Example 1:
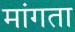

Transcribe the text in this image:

मांगता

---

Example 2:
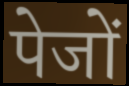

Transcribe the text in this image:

पेजों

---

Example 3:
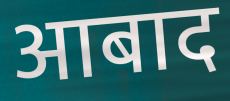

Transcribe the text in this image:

आबाद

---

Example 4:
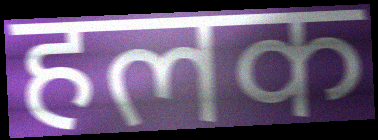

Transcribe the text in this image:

हलक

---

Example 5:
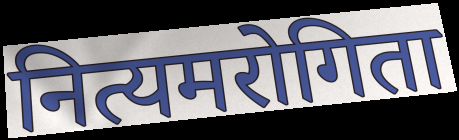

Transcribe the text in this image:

नित्यमरोगिता